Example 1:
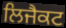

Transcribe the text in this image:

ਲਿਜੈਕਟ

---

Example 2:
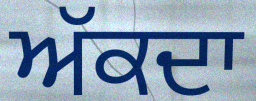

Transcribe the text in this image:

ਅੱਕਦਾ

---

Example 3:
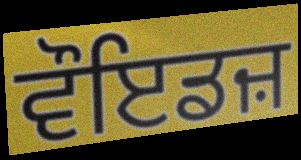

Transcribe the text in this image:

ਵੌਇਡਜ਼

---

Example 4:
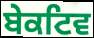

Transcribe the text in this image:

ਬੇਕਟਿਵ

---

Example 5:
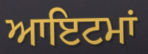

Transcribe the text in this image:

ਆਇਟਮਾਂ